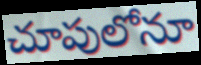
చూపులోనూ